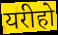
यरीहो